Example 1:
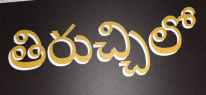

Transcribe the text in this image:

తిరుచ్చిలో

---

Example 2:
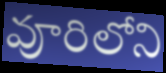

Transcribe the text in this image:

వూరిలోని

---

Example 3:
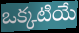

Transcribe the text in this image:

ఒక్కటియే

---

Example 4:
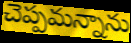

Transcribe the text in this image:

చెప్పమన్నాను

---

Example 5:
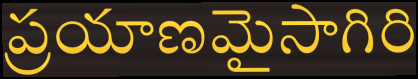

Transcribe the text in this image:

ప్రయాణమైసాగిరి